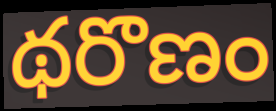
థరొణం